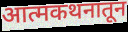
आत्मकथनातून